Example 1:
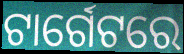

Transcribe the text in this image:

ଟାର୍ଗେଟରେ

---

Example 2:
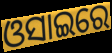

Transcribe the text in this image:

ଓସାଇରେ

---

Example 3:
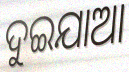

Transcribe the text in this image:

ଦୁଇଯାଆ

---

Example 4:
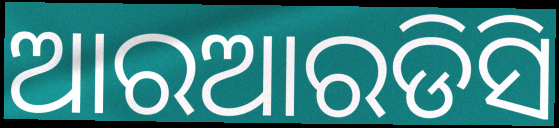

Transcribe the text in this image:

ଆରଆରଡିସି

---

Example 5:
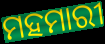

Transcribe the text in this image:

ମହମାରୀ